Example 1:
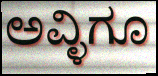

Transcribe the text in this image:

ಅವ್ಳಿಗೂ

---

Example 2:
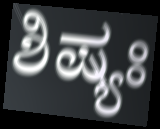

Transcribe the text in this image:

ಶಿಷ್ಯಃ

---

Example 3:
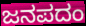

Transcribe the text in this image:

ಜನಪದಂ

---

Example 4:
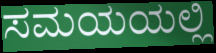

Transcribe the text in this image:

ಸಮಯಯಲ್ಲಿ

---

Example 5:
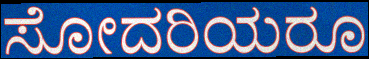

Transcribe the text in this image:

ಸೋದರಿಯರೂ